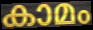
കാമം